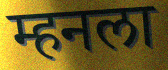
म्हनला